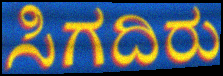
ಸಿಗದಿರು